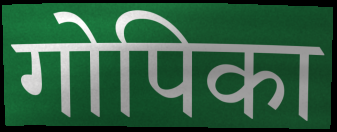
गोपिका